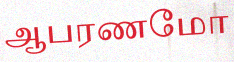
ஆபரணமோ